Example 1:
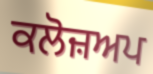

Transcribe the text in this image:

ਕਲੋਜ਼ਅਪ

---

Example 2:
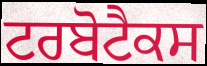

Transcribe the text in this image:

ਟਰਬੋਟੈਕਸ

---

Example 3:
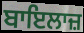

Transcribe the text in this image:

ਬਾਇਲਾਜ਼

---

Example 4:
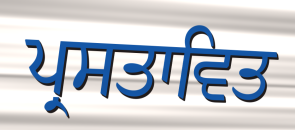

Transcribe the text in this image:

ਪ੍ਰਸਤਾਵਿਤ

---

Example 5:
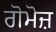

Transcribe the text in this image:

ਗੋਮੋਜ਼